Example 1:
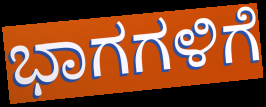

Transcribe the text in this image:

ಭಾಗಗಳಿಗೆ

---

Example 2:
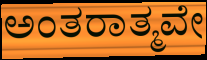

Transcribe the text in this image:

ಅಂತರಾತ್ಮವೇ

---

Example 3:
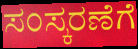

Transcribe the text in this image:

ಸಂಸ್ಕರಣೆಗೆ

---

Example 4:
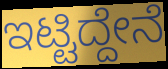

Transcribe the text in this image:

ಇಟ್ಟಿದ್ದೇನೆ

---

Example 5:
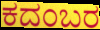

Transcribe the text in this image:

ಕದಂಬರ